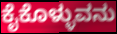
ಕೈಕೊಳ್ಳುವನು